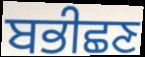
ਬਭੀਛਣ